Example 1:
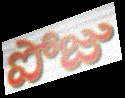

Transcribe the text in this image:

పోజు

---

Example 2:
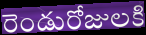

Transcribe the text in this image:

రెండురోజులకి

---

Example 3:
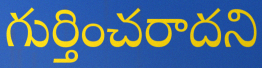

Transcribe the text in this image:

గుర్తించరాదని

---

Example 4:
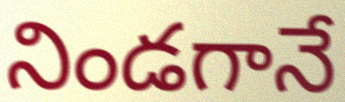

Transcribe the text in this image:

నిండగానే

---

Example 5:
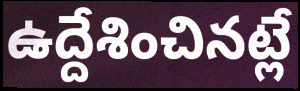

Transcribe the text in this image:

ఉద్దేశించినట్లే